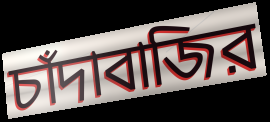
চাঁদাবাজির